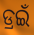
ଡ୍ରଇଁ